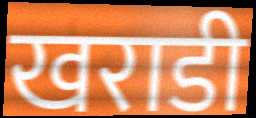
खराडी